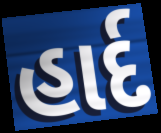
હાર્દ